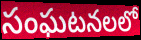
సంఘటనలలో